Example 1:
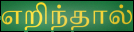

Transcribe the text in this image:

எறிந்தால்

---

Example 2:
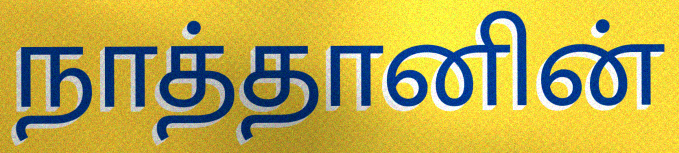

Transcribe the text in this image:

நாத்தானின்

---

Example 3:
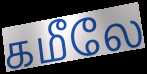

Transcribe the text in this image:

கமீலே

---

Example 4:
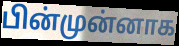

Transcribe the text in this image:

பின்முன்னாக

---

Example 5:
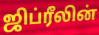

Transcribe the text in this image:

ஜிப்ரீலின்